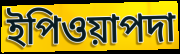
ইপিওয়াপদা